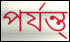
পর্যন্ত্